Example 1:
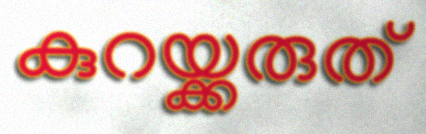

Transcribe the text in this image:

കുറയ്ക്കരുത്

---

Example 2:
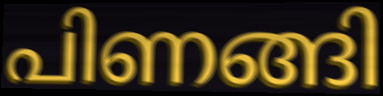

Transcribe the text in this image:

പിണങ്ങി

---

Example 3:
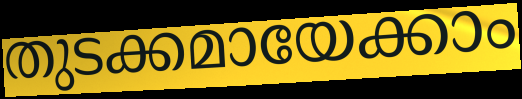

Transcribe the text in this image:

തുടക്കമായേക്കാം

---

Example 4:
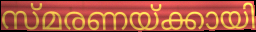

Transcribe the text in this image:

സ്മരണയ്ക്കായി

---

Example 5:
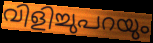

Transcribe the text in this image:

വിളിച്ചുപറയും